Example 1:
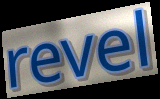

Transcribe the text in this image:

revel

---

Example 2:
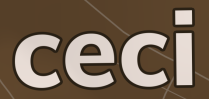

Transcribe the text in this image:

ceci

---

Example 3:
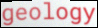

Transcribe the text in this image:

geology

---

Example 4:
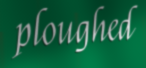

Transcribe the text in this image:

ploughed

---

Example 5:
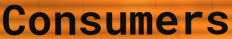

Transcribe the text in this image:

Consumers